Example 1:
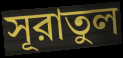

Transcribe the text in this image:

সূরাতুল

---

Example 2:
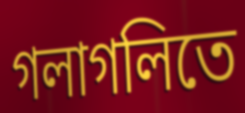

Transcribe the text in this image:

গলাগলিতে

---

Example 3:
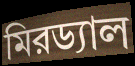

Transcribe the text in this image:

মিরড্যাল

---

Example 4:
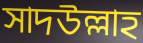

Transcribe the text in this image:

সাদউল্লাহ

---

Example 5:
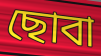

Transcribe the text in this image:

ছোবা